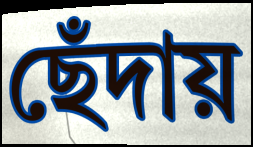
ছেঁদায়